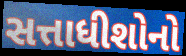
સત્તાધીશોનો